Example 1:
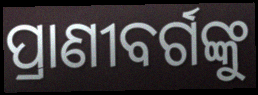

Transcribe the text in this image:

ପ୍ରାଣୀବର୍ଗଙ୍କୁ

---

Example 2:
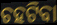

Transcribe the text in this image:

ଚହଟିବା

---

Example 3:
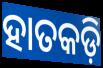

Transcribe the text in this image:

ହାତକଡ଼ି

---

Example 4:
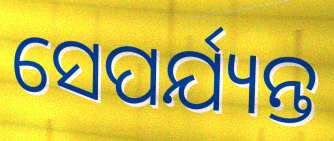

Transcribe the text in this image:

ସେପର୍ଯ୍ୟନ୍ତ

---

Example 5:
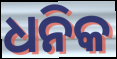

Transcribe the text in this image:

ଧନିକ